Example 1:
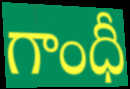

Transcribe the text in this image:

గాంధీ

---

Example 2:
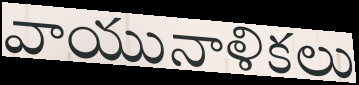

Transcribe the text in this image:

వాయునాళికలు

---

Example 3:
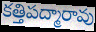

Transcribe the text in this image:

కత్తిపద్మారావు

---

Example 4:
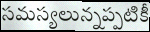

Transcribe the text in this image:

సమస్యలున్నప్పటికీ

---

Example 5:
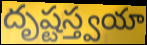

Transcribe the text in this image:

దృష్టస్త్వయా